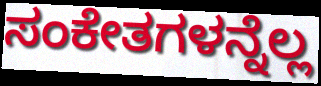
ಸಂಕೇತಗಳನ್ನೆಲ್ಲ